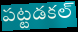
పట్టడకల్